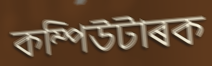
কম্পিউটাৰক